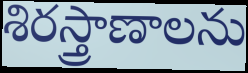
శిరస్త్రాణాలను